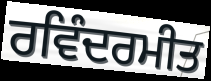
ਰਵਿੰਦਰਮੀਤ